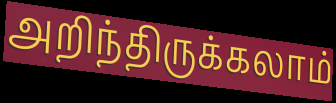
அறிந்திருக்கலாம்